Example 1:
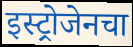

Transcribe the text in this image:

इस्ट्रोजेनचा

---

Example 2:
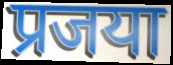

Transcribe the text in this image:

प्रजया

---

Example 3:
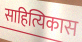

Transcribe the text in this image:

साहित्यिकास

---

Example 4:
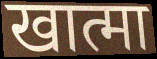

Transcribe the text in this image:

खात्मा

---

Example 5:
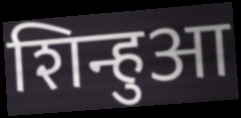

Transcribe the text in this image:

शिन्हुआ